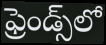
ఫ్రెండ్స్‌లో